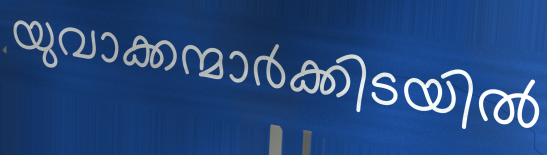
യുവാക്കന്മാർക്കിടയിൽ